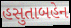
હસુતાબહેન